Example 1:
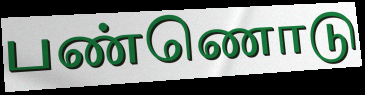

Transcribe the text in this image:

பண்ணொடு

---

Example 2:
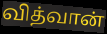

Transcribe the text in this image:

வித்வான்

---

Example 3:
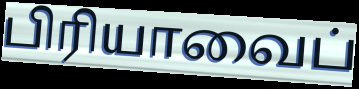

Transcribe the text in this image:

பிரியாவைப்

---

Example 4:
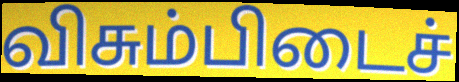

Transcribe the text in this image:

விசும்பிடைச்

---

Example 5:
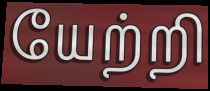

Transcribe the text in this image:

யேற்றி